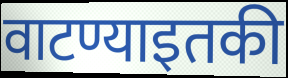
वाटण्याइतकी